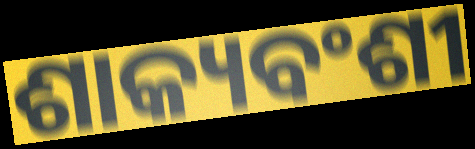
ଶାକ୍ୟବଂଶୀ